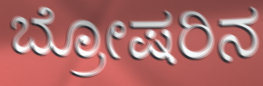
ಬ್ರೋಷರಿನ